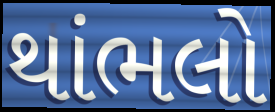
થાંભલો